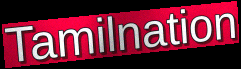
Tamilnation